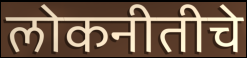
लोकनीतीचे